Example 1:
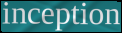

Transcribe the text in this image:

inception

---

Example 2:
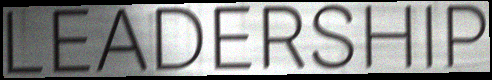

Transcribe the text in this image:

LEADERSHIP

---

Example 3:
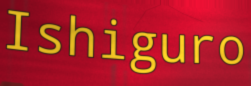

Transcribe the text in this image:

Ishiguro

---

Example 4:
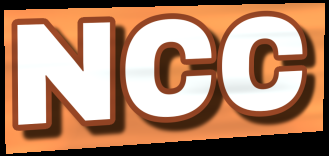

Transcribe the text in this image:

NCC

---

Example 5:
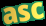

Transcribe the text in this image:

asc